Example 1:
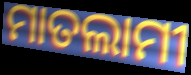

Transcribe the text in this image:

ମାତଲାମୀ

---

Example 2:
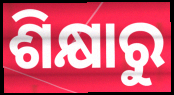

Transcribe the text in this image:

ଶିକ୍ଷାରୁ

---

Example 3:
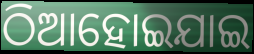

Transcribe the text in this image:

ଠିଆହୋଇଯାଇ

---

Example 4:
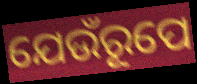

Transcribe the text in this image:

ଯେଉଁରୂପେ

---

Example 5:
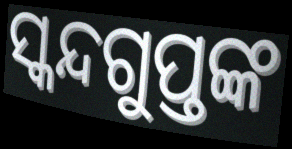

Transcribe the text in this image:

ସ୍କନ୍ଦଗୁପ୍ତଙ୍କ